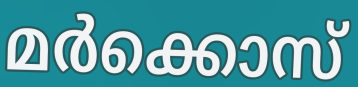
മർക്കൊസ്